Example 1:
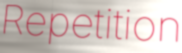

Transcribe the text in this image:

Repetition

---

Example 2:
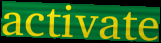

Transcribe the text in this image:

activate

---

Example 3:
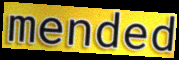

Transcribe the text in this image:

mended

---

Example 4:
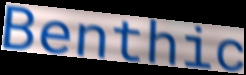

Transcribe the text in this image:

Benthic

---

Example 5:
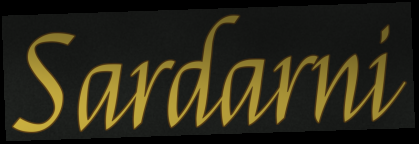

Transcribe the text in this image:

Sardarni